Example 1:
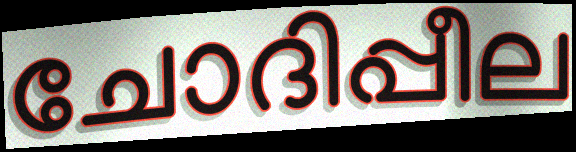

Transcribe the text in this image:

ചോദിപ്പീല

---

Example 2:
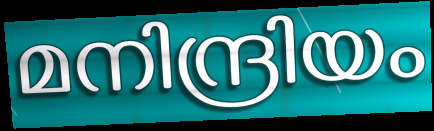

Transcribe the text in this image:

മനിന്ദ്രിയം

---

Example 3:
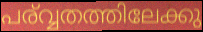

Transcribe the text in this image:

പര്വ്വതത്തിലേക്കു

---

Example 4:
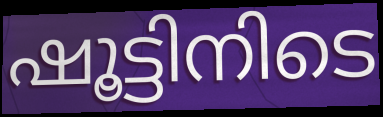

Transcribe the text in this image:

ഷൂട്ടിനിടെ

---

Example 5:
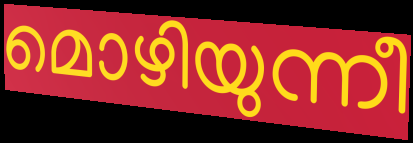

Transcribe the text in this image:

മൊഴിയുന്നീ